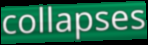
collapses